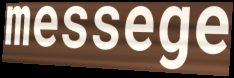
messege